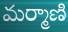
మర్మాణి